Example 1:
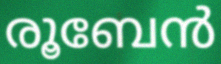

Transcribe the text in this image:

രൂബേൻ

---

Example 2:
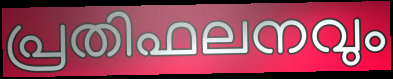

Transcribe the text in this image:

പ്രതിഫലനവും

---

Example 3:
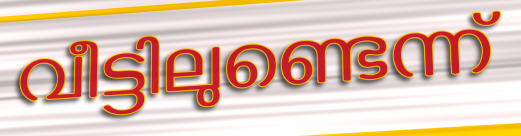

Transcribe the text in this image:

വീട്ടിലുണ്ടെന്ന്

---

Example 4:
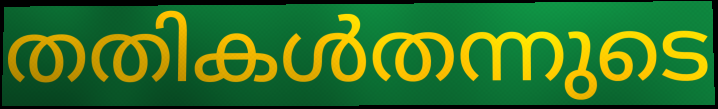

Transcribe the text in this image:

തതികൾതന്നുടെ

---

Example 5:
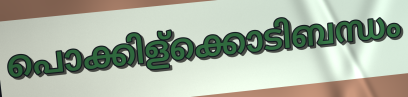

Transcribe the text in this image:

പൊക്കിള്ക്കൊടിബന്ധം